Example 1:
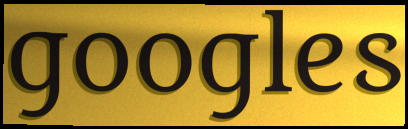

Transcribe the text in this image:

googles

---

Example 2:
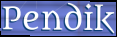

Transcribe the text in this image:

Pendik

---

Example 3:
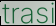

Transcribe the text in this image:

trasi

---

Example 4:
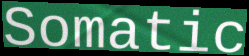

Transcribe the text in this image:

Somatic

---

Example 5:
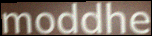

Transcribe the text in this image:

moddhe